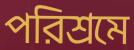
পরিশ্রমে